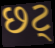
છટ્